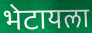
भेटायला